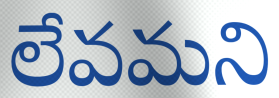
లేవమని